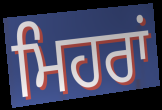
ਮਿਹਰਾਂ